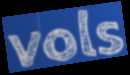
vols